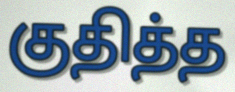
குதித்த